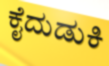
ಕೈದುಡುಕಿ